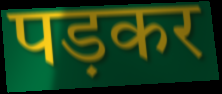
पड़कर